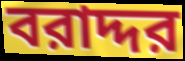
বরাদ্দর